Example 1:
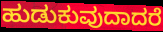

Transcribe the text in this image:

ಹುಡುಕುವುದಾದರೆ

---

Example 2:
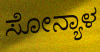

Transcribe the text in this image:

ಸೋನ್ಯಾಳ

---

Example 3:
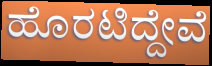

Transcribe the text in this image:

ಹೊರಟಿದ್ದೇವೆ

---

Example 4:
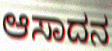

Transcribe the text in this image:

ಆಸಾದನ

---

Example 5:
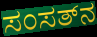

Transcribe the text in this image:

ಸಂಸತ್‌ನ